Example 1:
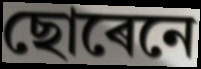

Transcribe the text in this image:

ছোৰেনে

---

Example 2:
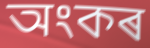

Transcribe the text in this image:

অংকৰ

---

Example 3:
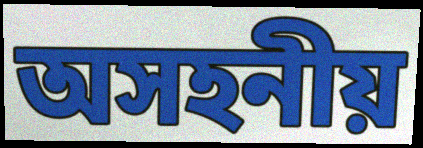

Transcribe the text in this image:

অসহনীয়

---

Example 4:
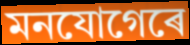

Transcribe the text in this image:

মনযোগেৰে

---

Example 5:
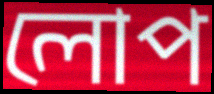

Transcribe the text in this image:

লোপ